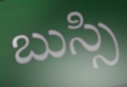
బుస్సి